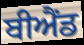
ਬੀਐਂਡ